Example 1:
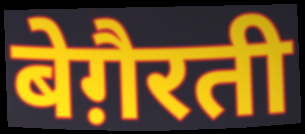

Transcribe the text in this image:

बेग़ैरती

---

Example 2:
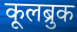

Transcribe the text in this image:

कूलब्रुक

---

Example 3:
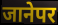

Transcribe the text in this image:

जानेपर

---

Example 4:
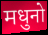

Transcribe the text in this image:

मधुनो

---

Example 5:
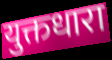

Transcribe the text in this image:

युक्तधारा